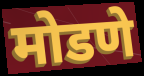
मोडणे